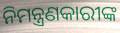
ନିମନ୍ତ୍ରଣକାରୀଙ୍କ